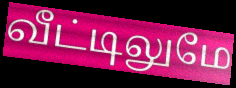
வீட்டிலுமே